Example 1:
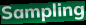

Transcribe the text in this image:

Sampling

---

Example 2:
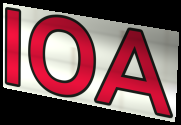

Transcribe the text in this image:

IOA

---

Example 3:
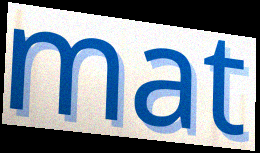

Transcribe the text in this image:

mat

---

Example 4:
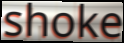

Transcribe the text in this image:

shoke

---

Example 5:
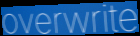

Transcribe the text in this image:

overwrite